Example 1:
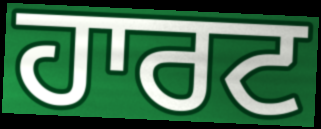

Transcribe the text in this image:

ਹਾਰਟ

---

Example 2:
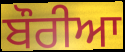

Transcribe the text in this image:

ਬੌਰੀਆ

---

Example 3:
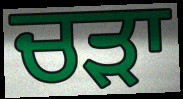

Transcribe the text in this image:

ਚੜਾ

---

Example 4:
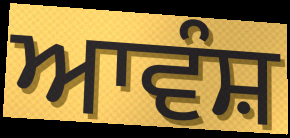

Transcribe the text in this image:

ਆਵੰਸ਼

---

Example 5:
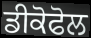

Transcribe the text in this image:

ਡੀਕੋਫੋਲ